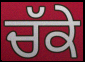
ਚੱਕੇ